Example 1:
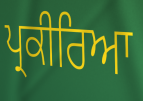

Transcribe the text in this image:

ਪ੍ਰਕੀਰਿਆ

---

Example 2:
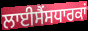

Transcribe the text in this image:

ਲਾਈਸੈਂਸਧਾਰਕਾਂ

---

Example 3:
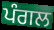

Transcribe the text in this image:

ਪੰਗਲ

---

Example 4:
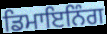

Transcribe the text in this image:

ਡਿਮਾਇਨਿੰਗ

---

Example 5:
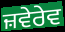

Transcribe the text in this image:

ਜ਼ਵੇਰੇਵ